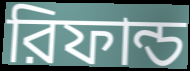
রিফান্ড